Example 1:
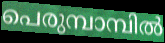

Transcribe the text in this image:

പെരുമ്പാമ്പിൽ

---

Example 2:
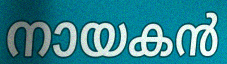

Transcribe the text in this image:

നായകൻ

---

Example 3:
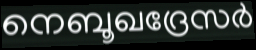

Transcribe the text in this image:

നെബൂഖദ്രേസർ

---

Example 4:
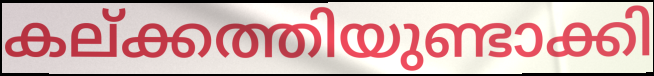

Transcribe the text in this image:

കല്ക്കത്തിയുണ്ടാക്കി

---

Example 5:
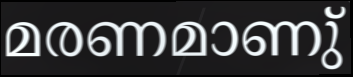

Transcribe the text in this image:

മരണമാണു്